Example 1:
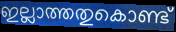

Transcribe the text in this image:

ഇല്ലാത്തതുകൊണ്ട്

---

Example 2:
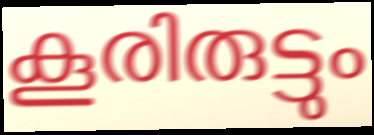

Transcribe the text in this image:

കൂരിരുട്ടും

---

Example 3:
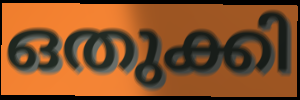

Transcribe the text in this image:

ഒതുക്കി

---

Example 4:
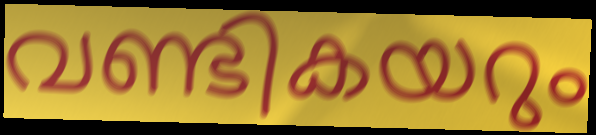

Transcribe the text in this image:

വണ്ടികയറും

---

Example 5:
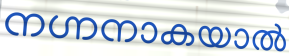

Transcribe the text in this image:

നഗ്നനാകയാൽ